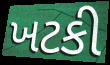
ખટકી